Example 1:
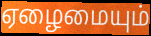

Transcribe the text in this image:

ஏழைமையும்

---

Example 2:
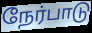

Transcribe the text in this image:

நேர்பாடு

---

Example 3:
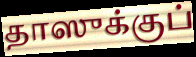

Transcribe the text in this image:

தாஸுக்குப்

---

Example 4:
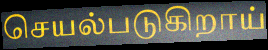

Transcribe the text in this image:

செயல்படுகிறாய்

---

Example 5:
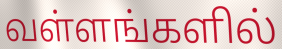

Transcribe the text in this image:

வள்ளங்களில்